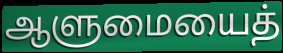
ஆளுமையைத்